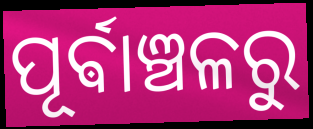
ପୂର୍ଵାଞ୍ଚଳରୁ